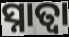
ସ୍ନାତ୍ବା